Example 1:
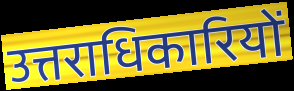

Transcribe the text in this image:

उत्तराधिकारियों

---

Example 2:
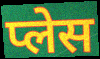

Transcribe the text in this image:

प्लेस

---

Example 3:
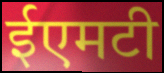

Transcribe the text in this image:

ईएमटी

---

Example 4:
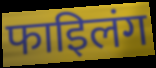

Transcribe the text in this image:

फाइिलंग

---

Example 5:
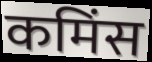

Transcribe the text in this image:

कमिंस